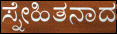
ಸ್ನೇಹಿತನಾದ